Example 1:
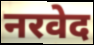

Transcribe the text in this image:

नरवेद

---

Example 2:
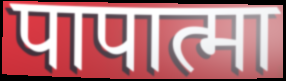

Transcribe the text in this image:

पापात्मा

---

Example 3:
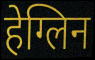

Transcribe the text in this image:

हेग्लिन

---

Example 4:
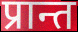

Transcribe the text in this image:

प्रान्त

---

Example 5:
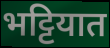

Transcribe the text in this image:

भट्टियात